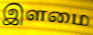
இளமை